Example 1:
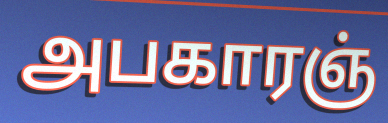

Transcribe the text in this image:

அபகாரஞ்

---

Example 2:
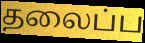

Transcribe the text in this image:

தலைப்ப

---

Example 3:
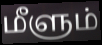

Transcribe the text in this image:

மீளும்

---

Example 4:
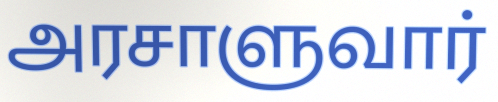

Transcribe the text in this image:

அரசாளுவார்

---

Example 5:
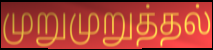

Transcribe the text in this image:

முறுமுறுத்தல்